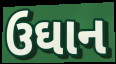
ઉઘાન